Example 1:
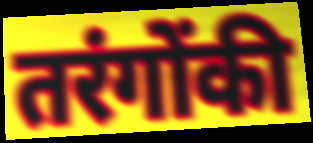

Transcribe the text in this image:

तरंगोंकी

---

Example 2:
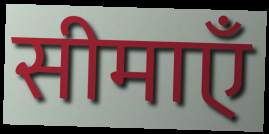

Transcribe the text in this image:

सीमाएँ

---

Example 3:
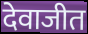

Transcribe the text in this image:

देवाजीत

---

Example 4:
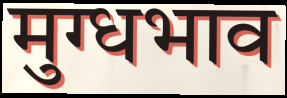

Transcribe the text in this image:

मुग्धभाव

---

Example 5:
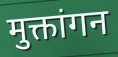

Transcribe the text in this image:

मुक्तांगन